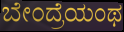
ಬೇಂದ್ರೆಯಂಥ